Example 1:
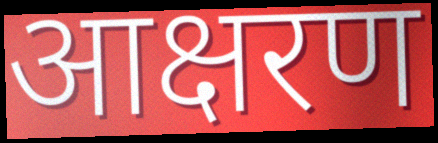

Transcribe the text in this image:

आक्षरण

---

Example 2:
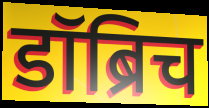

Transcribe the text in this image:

डॉब्रिच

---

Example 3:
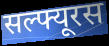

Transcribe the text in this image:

सल्फ्यूरस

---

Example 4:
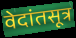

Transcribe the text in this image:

वेदांतसूत्र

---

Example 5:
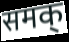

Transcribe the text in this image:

समक्